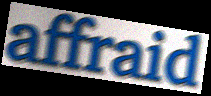
affraid